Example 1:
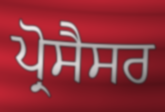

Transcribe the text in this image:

ਪ੍ਰੋਸੈਸਰ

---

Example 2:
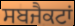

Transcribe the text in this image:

ਸਬਜੈਕਟਾਂ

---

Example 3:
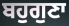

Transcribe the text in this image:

ਬਹੁਗੁਣਾ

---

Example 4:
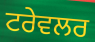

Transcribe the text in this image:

ਟਰੇਵਲਰ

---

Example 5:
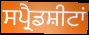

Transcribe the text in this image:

ਸਪ੍ਰੈਡਸ਼ੀਟਾਂ